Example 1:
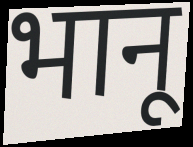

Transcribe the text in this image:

भानू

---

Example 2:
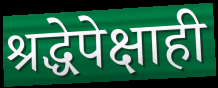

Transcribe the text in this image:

श्रद्धेपेक्षाही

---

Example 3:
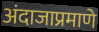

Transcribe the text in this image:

अंदाजाप्रमाणे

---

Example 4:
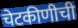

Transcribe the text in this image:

चेटकीणीची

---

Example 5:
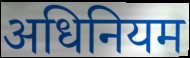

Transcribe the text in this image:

अधिनियम